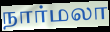
நார்மலா